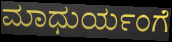
ಮಾಧುರ್ಯಂಗೆ